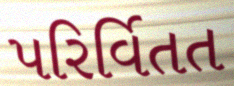
પરિર્વિતત